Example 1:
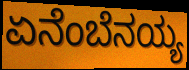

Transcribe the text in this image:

ಏನೆಂಬೆನಯ್ಯ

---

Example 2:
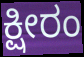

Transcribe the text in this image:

ಕ್ಷೀರಂ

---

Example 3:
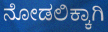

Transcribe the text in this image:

ನೋಡಲಿಕ್ಕಾಗಿ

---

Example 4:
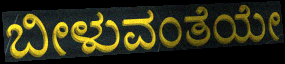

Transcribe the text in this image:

ಬೀಳುವಂತೆಯೇ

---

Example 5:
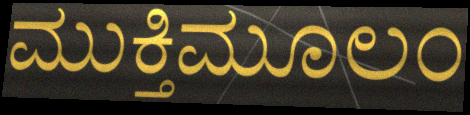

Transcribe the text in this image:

ಮುಕ್ತಿಮೂಲಂ